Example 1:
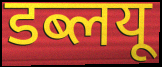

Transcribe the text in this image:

डब्लयू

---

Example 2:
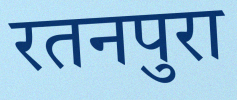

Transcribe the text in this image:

रतनपुरा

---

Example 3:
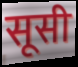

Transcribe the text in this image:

सूसी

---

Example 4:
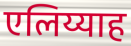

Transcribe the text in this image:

एलिय्याह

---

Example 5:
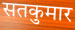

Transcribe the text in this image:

सतकुमार